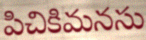
పిచికిమనసు